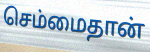
செம்மைதான்